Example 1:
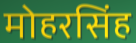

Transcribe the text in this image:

मोहरसिंह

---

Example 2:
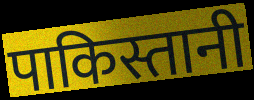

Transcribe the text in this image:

पाकिस्तानी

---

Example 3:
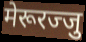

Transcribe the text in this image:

मेरूरज्जु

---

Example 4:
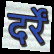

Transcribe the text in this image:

दर्रें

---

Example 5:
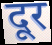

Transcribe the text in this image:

दूर